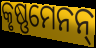
କୃଷ୍ଣମେନନ୍